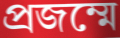
প্রজম্মে